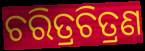
ଚରିତ୍ରଚିତ୍ରଣ